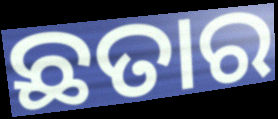
ଛତାର